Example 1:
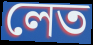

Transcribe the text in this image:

লেত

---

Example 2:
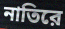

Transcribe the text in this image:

নাতিরে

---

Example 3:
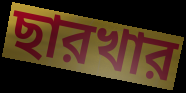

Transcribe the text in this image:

ছারখার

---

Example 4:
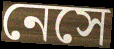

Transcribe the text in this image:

নেসে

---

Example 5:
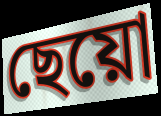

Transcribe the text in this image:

ছেয়ো